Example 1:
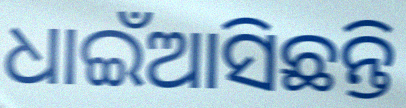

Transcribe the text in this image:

ଧାଇଁଆସିଛନ୍ତି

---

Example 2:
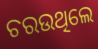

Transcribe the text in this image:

ଚରଉଥିଲେ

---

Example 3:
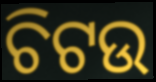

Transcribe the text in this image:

ଚିଟଉ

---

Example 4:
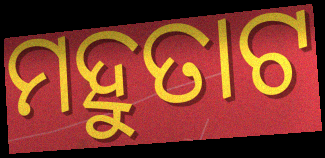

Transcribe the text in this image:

ମହୁତାଟ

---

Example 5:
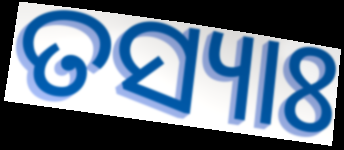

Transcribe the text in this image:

ତସ୍ୟାଃ